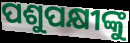
ପଶୁପକ୍ଷୀଙ୍କୁ